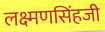
लक्ष्मणसिंहजी